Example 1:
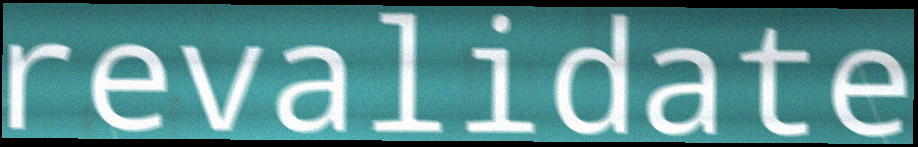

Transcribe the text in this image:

revalidate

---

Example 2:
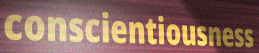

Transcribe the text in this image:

conscientiousness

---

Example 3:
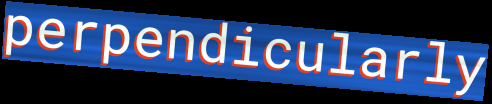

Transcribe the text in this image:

perpendicularly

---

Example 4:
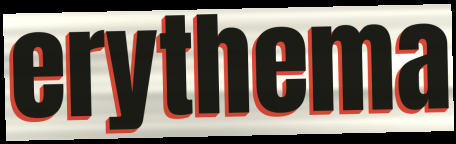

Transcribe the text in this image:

erythema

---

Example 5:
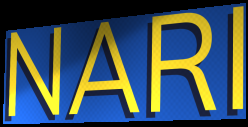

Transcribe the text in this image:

NARI